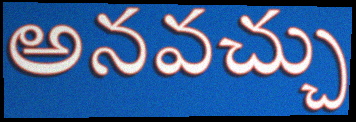
అనవచ్చు